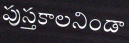
పుస్తకాలనిండా